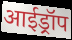
आईड्रॉप